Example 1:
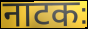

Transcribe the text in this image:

नाटकः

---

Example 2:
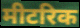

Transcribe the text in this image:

मीटरिक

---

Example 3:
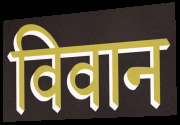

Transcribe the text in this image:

विवान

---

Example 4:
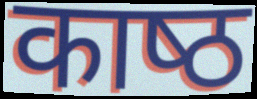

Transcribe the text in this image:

काष्‍ठ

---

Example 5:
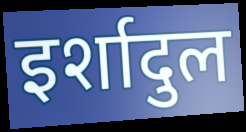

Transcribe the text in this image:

इर्शादुल